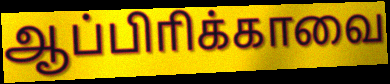
ஆப்பிரிக்காவை